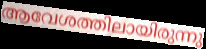
ആവേശത്തിലായിരുന്നു